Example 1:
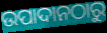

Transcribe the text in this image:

ଉପାଦାନଠାରୁ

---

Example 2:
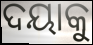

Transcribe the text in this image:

ଦୟାକୁ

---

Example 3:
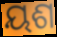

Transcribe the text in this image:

ୟଶ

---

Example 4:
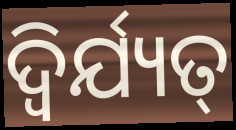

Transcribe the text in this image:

ଦ୍ୱିର୍ଯ୍ୟତ୍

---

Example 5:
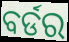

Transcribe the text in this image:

ବର୍ଡର